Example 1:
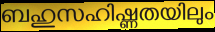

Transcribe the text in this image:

ബഹുസഹിഷ്ണതയിലും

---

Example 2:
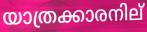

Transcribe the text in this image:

യാത്രക്കാരനില്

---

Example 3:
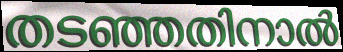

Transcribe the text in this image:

തടഞ്ഞതിനാൽ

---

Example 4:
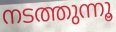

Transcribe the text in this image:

നടത്തുന്നൂ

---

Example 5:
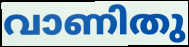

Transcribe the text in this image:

വാണിതു